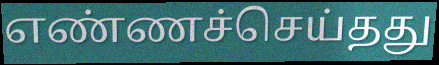
எண்ணச்செய்தது